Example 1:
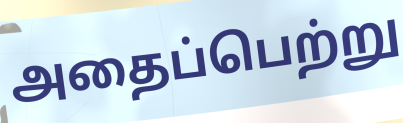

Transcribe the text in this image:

அதைப்பெற்று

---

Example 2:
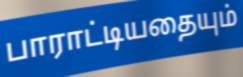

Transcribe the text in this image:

பாராட்டியதையும்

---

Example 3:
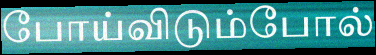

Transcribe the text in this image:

போய்விடும்போல்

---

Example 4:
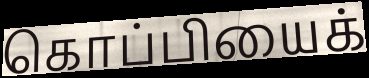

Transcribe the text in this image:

கொப்பியைக்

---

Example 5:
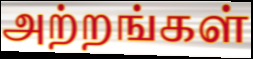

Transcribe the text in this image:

அற்றங்கள்